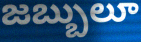
జబ్బులూ